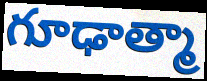
గూఢాత్మా